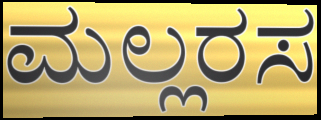
ಮಲ್ಲರಸ